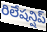
రిలేషన్షిప్